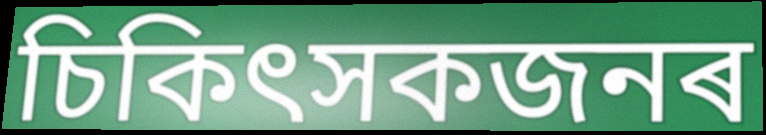
চিকিৎসকজনৰ